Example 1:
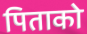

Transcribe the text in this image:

पिताको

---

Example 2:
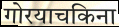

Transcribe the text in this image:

गोरयाचकिना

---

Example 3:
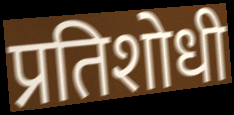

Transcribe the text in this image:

प्रतिशोधी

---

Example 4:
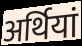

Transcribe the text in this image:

अर्थियां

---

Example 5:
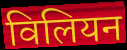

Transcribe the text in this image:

विलियन